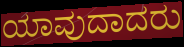
ಯಾವುದಾದರು